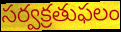
సర్వక్రతుఫలం